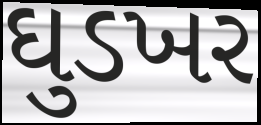
ઘુડખર